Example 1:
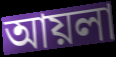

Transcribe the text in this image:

আয়লা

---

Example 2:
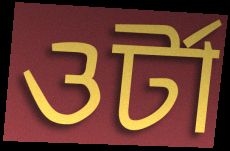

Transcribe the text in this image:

ওর্টা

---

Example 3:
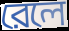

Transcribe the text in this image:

রেলে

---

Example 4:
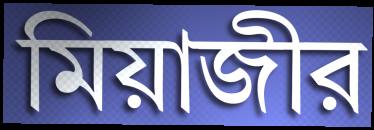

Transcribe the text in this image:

মিয়াজীর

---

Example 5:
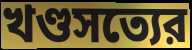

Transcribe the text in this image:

খণ্ডসত্যের